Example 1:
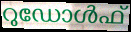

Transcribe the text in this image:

റുഡോൾഫ്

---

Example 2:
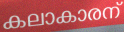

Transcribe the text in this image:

കലാകാരന്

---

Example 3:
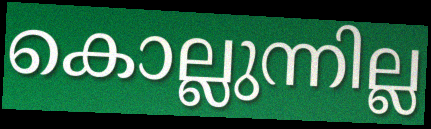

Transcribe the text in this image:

കൊല്ലുന്നില്ല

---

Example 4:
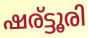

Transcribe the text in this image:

ഷര്ട്ടൂരി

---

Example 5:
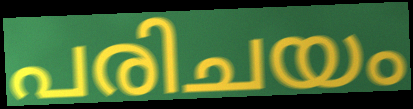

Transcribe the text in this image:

പരിചയം